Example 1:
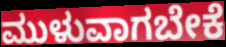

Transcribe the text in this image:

ಮುಳುವಾಗಬೇಕೆ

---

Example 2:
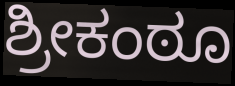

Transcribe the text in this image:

ಶ್ರೀಕಂಠೂ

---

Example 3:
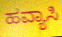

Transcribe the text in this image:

ಹವ್ಯಾಸಿ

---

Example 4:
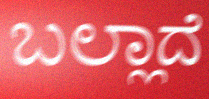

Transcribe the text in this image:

ಬಲ್ಲಾದೆ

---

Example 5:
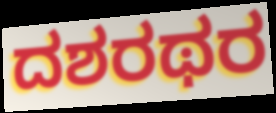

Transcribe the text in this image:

ದಶರಥರ